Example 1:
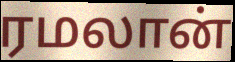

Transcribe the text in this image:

ரமலான்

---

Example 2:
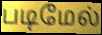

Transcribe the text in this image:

படிமேல்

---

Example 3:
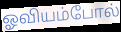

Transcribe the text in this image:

ஓவியம்போல்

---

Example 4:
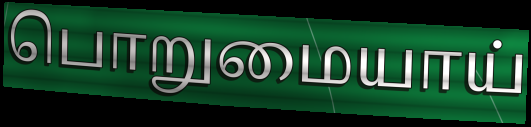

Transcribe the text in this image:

பொறுமையாய்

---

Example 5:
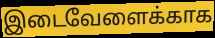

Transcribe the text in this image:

இடைவேளைக்காக